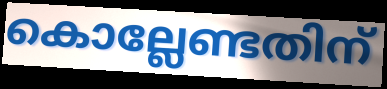
കൊല്ലേണ്ടതിന്